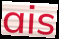
ais